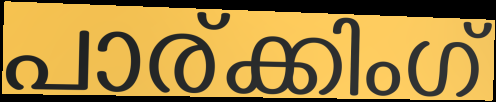
പാര്ക്കിംഗ്